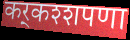
कर्कश्शपणा